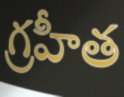
గ్రహీత